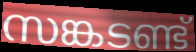
സങ്കടണ്ട്